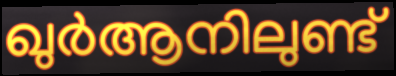
ഖുർആനിലുണ്ട്